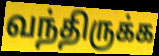
வந்திருக்க